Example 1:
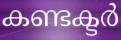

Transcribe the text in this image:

കണ്ടക്ടർ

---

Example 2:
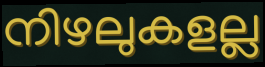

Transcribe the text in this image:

നിഴലുകളല്ല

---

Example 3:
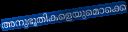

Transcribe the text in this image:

അനുഭൂതികളെയുമൊക്കെ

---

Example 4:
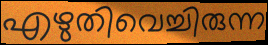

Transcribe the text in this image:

എഴുതിവെച്ചിരുന്ന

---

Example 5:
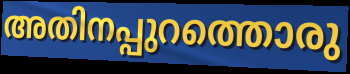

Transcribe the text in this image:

അതിനപ്പുറത്തൊരു